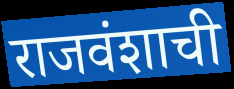
राजवंशाची